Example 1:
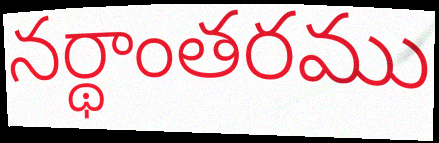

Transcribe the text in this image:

నర్థాంతరము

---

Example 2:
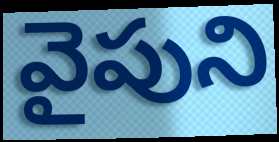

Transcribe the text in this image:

వైపుని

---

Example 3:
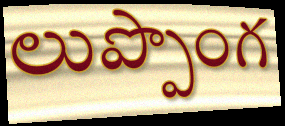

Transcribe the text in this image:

లుప్పొంగ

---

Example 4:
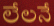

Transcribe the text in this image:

లేలనే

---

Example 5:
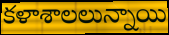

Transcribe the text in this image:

కళాశాలలున్నాయి